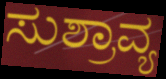
ಸುಶ್ರಾವ್ಯ